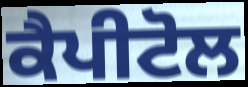
ਕੈਪੀਟੋਲ